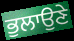
ਭੁਲਾਉਣੇ